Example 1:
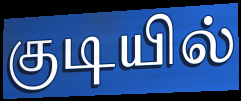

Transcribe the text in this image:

குடியில்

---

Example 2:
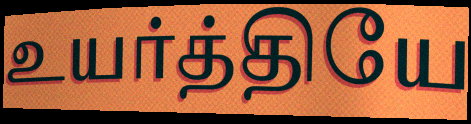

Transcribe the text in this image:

உயர்த்தியே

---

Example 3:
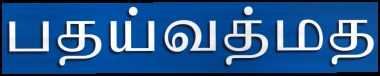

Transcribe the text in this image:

பதய்வத்மத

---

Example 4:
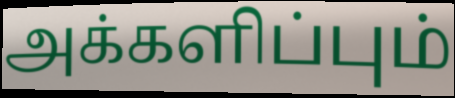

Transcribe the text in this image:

அக்களிப்பும்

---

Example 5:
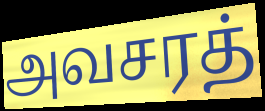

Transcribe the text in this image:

அவசரத்